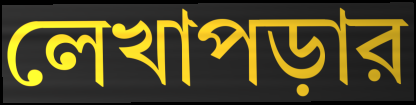
লেখাপড়ার